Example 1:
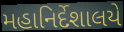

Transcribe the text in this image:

મહાનિર્દેશાલયે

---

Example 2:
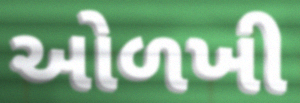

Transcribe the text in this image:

ઓળખી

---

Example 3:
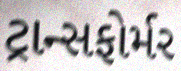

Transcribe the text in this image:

ટ્રાન્સફોર્મર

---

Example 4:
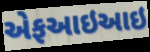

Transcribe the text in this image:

એફઆઇઆઇ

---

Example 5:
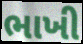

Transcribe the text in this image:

ભાખી